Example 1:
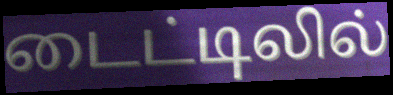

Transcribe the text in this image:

டைட்டிலில்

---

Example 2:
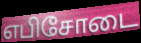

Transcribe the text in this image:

எபிசோடை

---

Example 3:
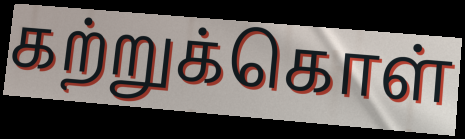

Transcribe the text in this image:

கற்றுக்கொள்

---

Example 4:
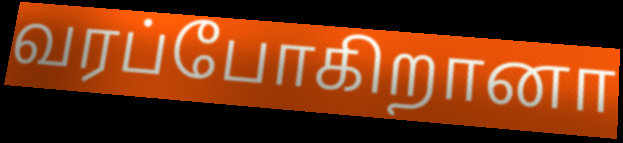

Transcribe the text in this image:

வரப்போகிறானா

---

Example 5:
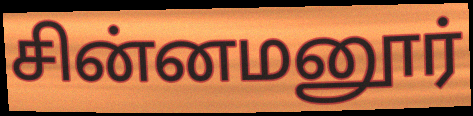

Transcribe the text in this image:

சின்னமனூர்